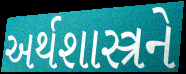
અર્થશાસ્ત્રને